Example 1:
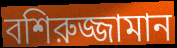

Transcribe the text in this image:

বশিরুজ্জামান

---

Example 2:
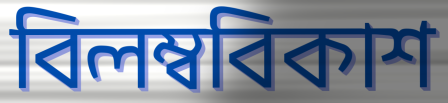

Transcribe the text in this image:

বিলম্ববিকাশ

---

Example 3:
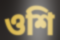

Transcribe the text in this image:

ওশি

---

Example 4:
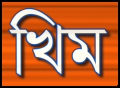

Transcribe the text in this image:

খিম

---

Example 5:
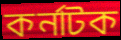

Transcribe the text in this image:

কর্নাটক